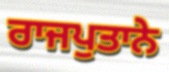
ਰਾਜਪੁਤਾਨੇ